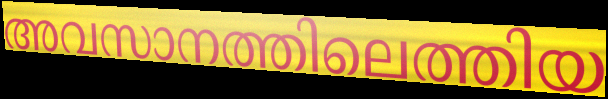
അവസാനത്തിലെത്തിയ